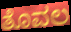
ತೊವಲ